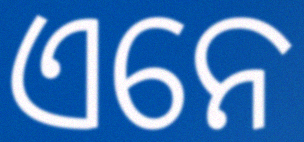
ଏନେ